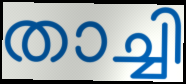
താച്ചി